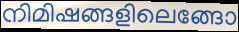
നിമിഷങ്ങളിലെങ്ങോ